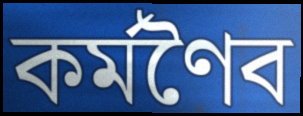
কর্মণৈব